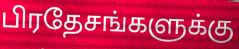
பிரதேசங்களுக்கு